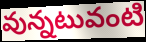
వున్నటువంటి